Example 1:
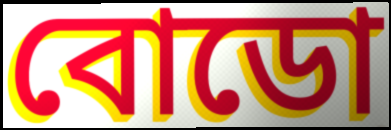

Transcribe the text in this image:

বোডো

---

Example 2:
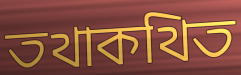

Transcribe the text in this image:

তথাকথিত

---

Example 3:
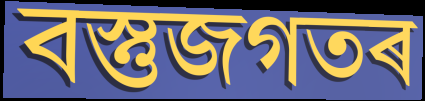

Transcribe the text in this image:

বস্তুজগতৰ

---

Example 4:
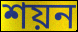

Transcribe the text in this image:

শয়ন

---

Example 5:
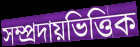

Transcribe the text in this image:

সম্প্ৰদায়ভিত্তিক